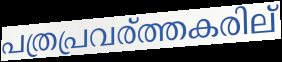
പത്രപ്രവര്ത്തകരില്